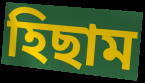
হিছাম